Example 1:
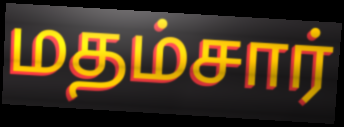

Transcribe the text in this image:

மதம்சார்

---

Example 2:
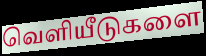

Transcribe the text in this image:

வெளியீடுகளை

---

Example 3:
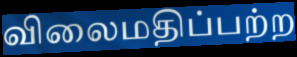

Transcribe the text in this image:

விலைமதிப்பற்ற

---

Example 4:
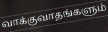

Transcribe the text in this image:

வாக்குவாதங்களும்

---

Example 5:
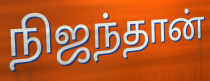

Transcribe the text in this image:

நிஜந்தான்